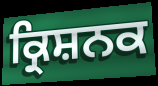
ਕ੍ਰਿਸ਼ਨਕ